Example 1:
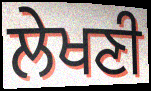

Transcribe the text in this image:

ਲੇਖਣੀ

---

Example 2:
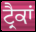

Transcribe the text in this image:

ਟ੍ਰੈਕਾਂ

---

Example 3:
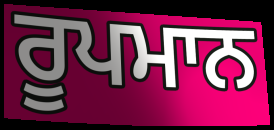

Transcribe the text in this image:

ਰੂਪਮਾਨ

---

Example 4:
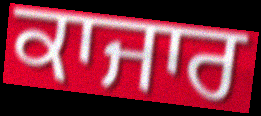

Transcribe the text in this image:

ਕਾਜਾਰ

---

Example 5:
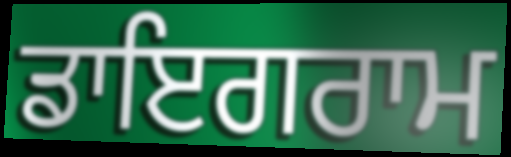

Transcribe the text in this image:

ਡਾਇਗਰਾਮ